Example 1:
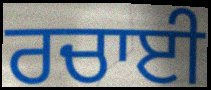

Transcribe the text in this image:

ਰਚਾਈ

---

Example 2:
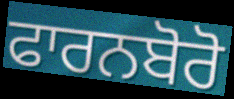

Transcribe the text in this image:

ਫਾਰਨਬੋਰੋ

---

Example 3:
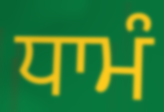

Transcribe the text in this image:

ਧਾਮੰ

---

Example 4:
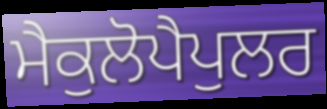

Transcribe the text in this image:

ਮੈਕੁਲੋਪੈਪੁਲਰ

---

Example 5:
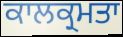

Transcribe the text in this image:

ਕਾਲਕ੍ਰਮਤਾ